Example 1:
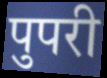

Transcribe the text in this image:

पुपरी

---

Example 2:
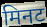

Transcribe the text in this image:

मिनट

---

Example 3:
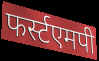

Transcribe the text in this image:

फर्स्टएमपी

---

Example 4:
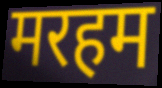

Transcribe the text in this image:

मरहम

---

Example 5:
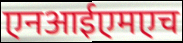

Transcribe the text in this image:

एनआईएमएच